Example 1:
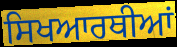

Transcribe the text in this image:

ਸਿਖਆਰਥੀਆਂ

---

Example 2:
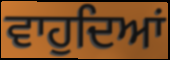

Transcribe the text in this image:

ਵਾਹੁਦਿਆਂ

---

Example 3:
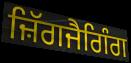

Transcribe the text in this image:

ਜ਼ਿੱਗਜੈਗਿੰਗ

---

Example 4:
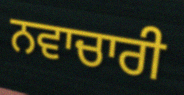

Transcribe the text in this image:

ਨਵਾਚਾਰੀ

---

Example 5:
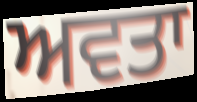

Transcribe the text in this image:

ਅਵਤਾ